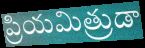
ప్రియమిత్రుడా